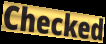
Checked